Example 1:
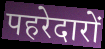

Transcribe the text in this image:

पहरेदारों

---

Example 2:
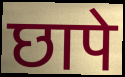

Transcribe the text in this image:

छापे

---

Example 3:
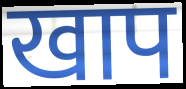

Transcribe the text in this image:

खाप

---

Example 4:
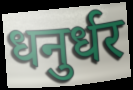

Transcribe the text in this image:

धनुर्धर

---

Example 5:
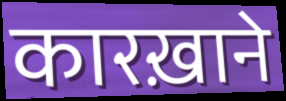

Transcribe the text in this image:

कारख़ाने